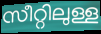
സീറ്റിലുള്ള